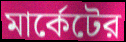
মার্কেটের